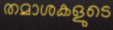
തമാശകളുടെ